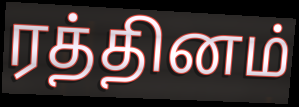
ரத்தினம்